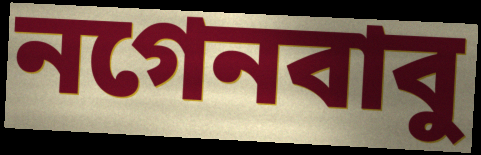
নগেনবাবু